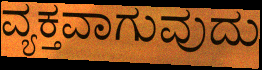
ವ್ಯಕ್ತವಾಗುವುದು